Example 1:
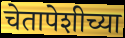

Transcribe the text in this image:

चेतापेशीच्या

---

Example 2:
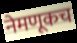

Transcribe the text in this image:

नेमणूकच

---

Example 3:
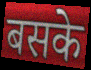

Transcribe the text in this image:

बसके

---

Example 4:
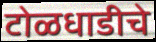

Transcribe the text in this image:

टोळधाडीचे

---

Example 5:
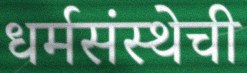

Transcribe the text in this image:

धर्मसंस्थेची